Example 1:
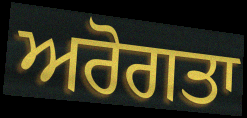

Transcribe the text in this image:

ਅਰੋਗਤਾ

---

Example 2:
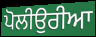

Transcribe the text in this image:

ਪੋਲੀਉਰੀਆ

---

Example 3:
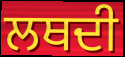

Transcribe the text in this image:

ਲਥਦੀ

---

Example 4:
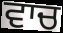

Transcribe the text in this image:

ਵਾਚ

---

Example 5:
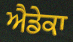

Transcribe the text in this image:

ਐਡੇਕਾ